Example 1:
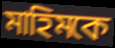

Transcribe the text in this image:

মাহিমকে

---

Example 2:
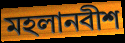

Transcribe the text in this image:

মহলানবীশ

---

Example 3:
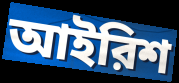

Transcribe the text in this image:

আইরিশ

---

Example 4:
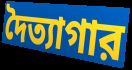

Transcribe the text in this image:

দৈত্যাগার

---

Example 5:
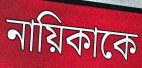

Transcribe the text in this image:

নায়িকাকে